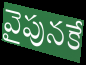
వైపునకే